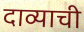
दाव्याची